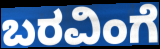
ಬರವಿಂಗೆ